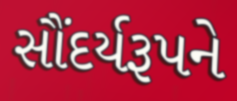
સૌંદર્યરૂપને